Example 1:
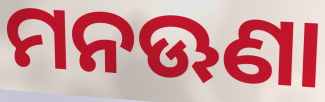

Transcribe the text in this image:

ମନଊଣା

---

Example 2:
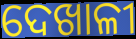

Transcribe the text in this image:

ଦେଖାଳୀ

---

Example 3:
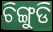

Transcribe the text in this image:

ଚିଙ୍ଗୁଡି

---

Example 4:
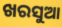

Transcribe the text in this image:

ଖରସୁଆ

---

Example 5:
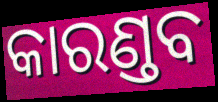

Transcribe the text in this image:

କାରଣ୍ଡବ